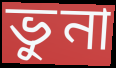
ভুনা